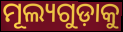
ମୂଲ୍ୟଗୁଡ଼ାକୁ